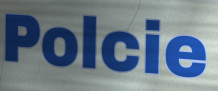
Polcie